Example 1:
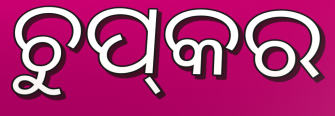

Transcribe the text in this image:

ଚୁପ୍‌କର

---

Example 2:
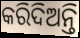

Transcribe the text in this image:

କରିଦିଅନ୍ତି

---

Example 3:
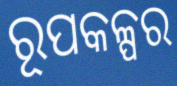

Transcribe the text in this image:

ରୂପକଳ୍ପର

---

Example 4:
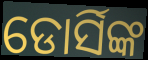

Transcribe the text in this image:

ଡୋର୍ସିଙ୍କ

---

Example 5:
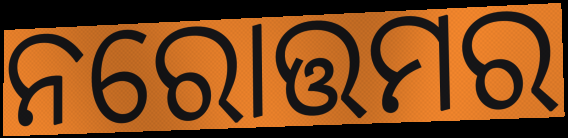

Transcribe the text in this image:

ନରୋତ୍ତମର